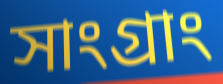
সাংগ্রাং